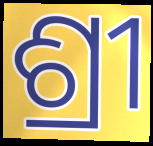
ଶ୍ରୀ